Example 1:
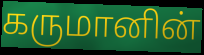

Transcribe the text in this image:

கருமானின்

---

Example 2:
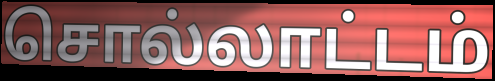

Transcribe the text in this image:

சொல்லாட்டம்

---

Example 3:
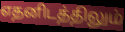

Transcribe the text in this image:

எதனிடத்திலும்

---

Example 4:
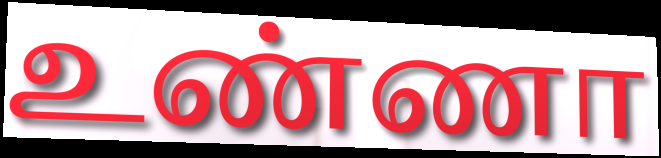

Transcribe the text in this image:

உண்ணா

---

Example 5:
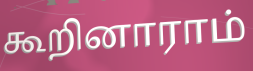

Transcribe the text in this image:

கூறினாராம்